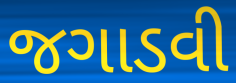
જગાડવી